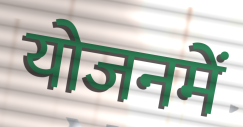
योजनमें